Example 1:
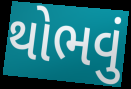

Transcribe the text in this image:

થોભવું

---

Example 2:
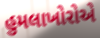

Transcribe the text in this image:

હુમલાખોરોએ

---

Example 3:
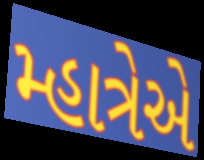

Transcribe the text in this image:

મ્હાત્રેએ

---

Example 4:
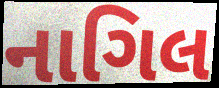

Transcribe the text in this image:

નાગિલ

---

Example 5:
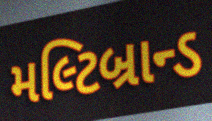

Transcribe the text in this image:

મલ્ટિબ્રાન્ડ